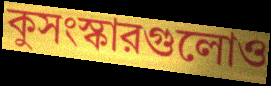
কুসংস্কারগুলোও